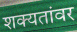
शक्यतांवर